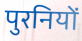
पुरनियों